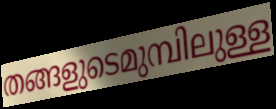
തങ്ങളുടെമുമ്പിലുള്ള